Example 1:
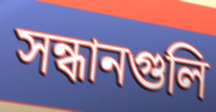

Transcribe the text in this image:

সন্ধানগুলি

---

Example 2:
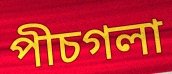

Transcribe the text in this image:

পীচগলা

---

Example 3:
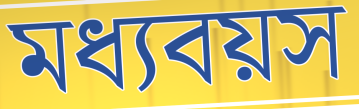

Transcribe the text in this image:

মধ্যবয়স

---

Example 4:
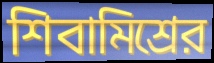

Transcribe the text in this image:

শিবামিশ্রের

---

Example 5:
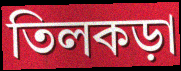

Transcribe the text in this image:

তিলকড়া